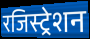
रजिस्ट्रेशन